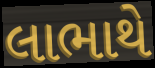
લાભાથે